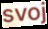
svoj